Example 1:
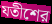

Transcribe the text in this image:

যতীশের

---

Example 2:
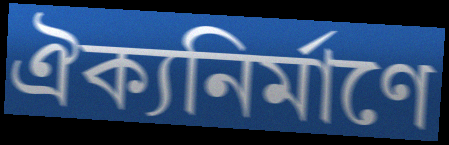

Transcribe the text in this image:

ঐক্যনির্মাণে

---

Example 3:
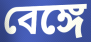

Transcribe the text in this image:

বেঙ্গে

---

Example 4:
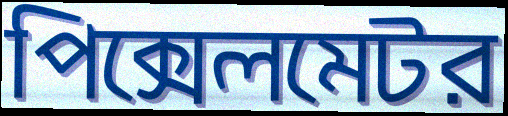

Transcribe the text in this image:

পিক্সেলমেটর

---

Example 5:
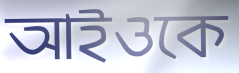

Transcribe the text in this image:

আইওকে